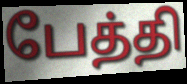
பேத்தி